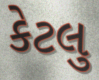
કેટલુ